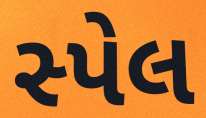
સ્પેલ